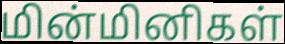
மின்மினிகள்